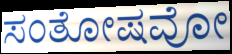
ಸಂತೋಷವೋ